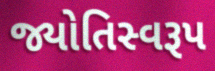
જ્યોતિસ્વરૂપ